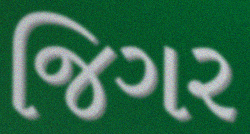
જિગર